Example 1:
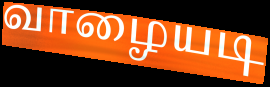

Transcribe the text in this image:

வாழையடி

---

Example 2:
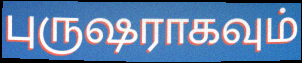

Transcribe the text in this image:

புருஷராகவும்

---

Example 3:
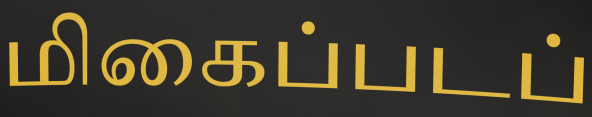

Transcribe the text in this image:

மிகைப்படப்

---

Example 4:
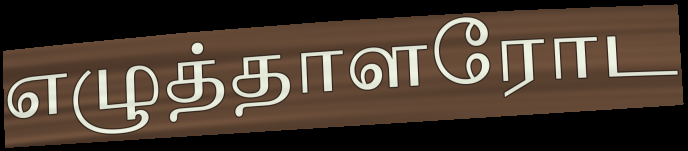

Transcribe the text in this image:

எழுத்தாளரோட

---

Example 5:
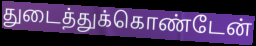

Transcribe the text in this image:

துடைத்துக்கொண்டேன்